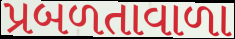
પ્રબળતાવાળા